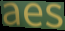
aes